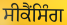
ਸੀਕੈਂਸਿੰਗ